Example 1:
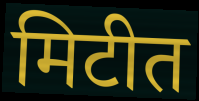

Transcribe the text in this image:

मिटीत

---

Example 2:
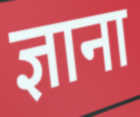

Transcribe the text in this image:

ज्ञाना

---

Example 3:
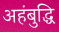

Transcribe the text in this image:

अहंबुद्धि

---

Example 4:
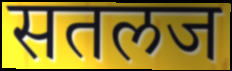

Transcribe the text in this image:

सतलज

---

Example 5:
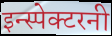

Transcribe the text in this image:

इन्स्पेक्टरनी